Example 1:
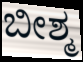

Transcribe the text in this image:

ಬೀಶ್ಮ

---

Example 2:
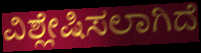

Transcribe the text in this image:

ವಿಶ್ಲೇಷಿಸಲಾಗಿದೆ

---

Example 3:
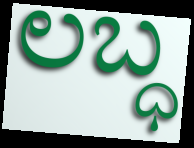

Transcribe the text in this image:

ಲಬ್ಧ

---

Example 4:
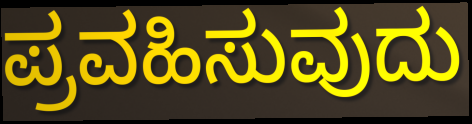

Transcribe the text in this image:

ಪ್ರವಹಿಸುವುದು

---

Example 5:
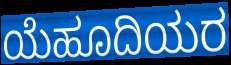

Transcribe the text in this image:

ಯೆಹೂದಿಯರ